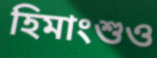
হিমাংশুও